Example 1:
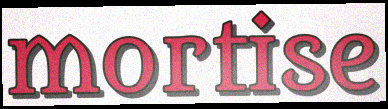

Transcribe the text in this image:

mortise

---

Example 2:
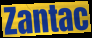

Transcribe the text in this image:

Zantac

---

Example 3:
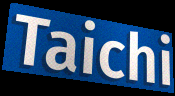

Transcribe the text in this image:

Taichi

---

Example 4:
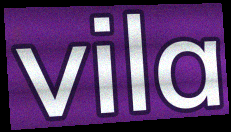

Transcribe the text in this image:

vila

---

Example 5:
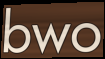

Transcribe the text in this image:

bwo